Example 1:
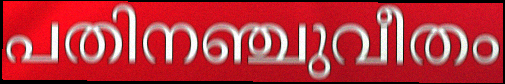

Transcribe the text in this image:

പതിനഞ്ചുവീതം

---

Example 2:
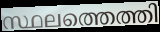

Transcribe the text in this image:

സ്ഥലത്തെത്തി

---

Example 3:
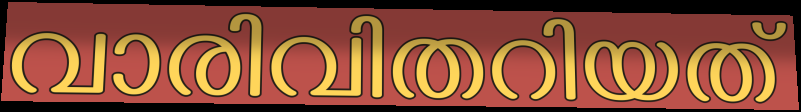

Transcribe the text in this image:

വാരിവിതറിയത്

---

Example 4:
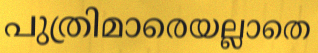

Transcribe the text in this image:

പുത്രിമാരെയല്ലാതെ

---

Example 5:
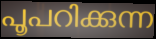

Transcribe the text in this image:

പൂപറിക്കുന്ന